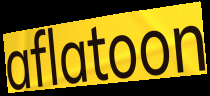
aflatoon